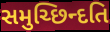
સમુચ્છિન્દતિ